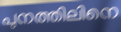
പുനത്തിലിനെ